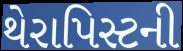
થેરાપિસ્ટની